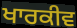
ਖਾਰਕੀਵ